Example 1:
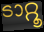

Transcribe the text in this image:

ടാറ്റൂ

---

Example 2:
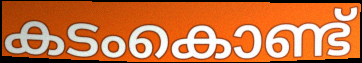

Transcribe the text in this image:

കടംകൊണ്ട്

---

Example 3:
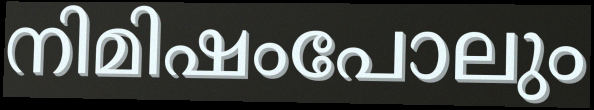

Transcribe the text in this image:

നിമിഷംപോലും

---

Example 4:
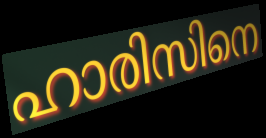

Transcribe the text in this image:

ഹാരിസിനെ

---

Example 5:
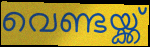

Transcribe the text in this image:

വെണ്ടയ്ക്ക്